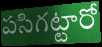
పసిగట్టారో